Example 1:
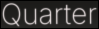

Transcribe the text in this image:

Quarter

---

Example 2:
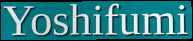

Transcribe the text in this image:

Yoshifumi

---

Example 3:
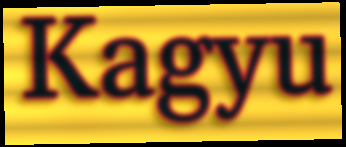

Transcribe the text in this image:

Kagyu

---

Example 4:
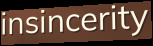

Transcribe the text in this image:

insincerity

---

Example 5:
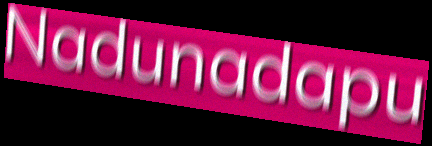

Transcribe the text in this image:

Nadunadapu